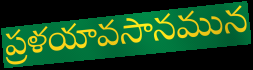
ప్రళయావసానమున